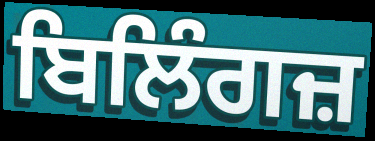
ਬਿਲਿੰਗਜ਼